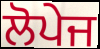
ਲੋਪੇਜ